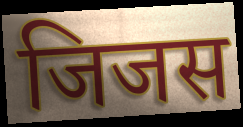
जिजस